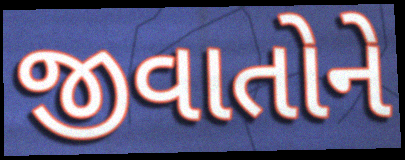
જીવાતોને